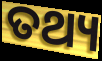
ତଥ୍ୟ